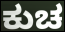
ಕುಚ